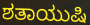
ಶತಾಯುಷಿ